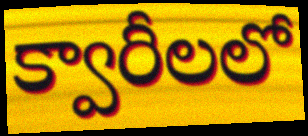
క్వారీలలో